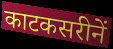
काटकसरीनें